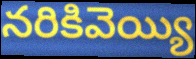
నరికివెయ్యి